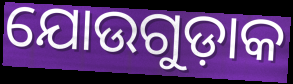
ଯୋଉଗୁଡ଼ାକ